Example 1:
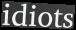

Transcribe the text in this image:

idiots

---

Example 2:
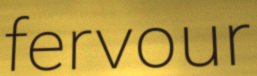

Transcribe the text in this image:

fervour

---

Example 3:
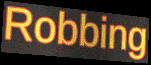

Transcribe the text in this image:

Robbing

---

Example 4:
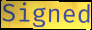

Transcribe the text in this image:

Signed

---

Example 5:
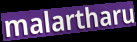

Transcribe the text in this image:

malartharu